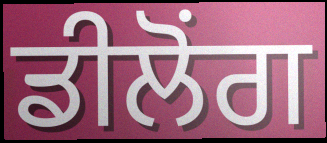
ਡੀਲੋਂਗ